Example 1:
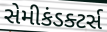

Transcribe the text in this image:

સેમીકંડક્ટર્સ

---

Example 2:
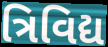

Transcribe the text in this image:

ત્રિવિદ્ય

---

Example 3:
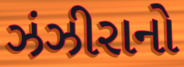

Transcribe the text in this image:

ઝંઝીરાનો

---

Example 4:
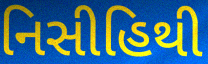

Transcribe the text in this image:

નિસીહિથી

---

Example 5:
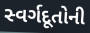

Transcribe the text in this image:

સ્વર્ગદૂતોની